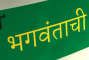
भगवंताची